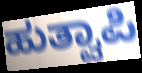
ಹುತ್ವಾಪಿ